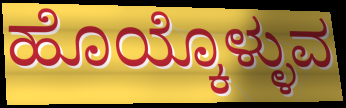
ಹೊಯ್ಕೊಳ್ಳುವ